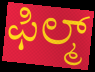
ಫಿಲ್ಮ್